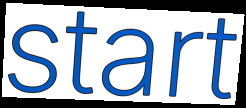
start